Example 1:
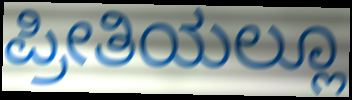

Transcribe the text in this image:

ಪ್ರೀತಿಯಲ್ಲೂ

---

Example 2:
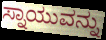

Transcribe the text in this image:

ಸ್ನಾಯುವನ್ನು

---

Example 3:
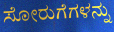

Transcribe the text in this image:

ಸೋರುಗೆಗಳನ್ನು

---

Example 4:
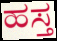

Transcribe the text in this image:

ಹಸ್ತ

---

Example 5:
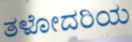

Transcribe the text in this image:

ತಳೋದರಿಯ